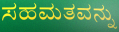
ಸಹಮತವನ್ನು